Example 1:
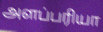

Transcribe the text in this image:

அளப்பரியா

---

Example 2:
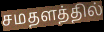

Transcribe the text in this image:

சமதளத்தில்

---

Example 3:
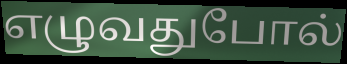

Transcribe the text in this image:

எழுவதுபோல்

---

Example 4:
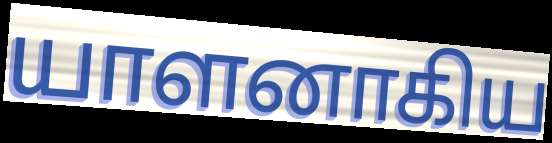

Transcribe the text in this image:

யாளனாகிய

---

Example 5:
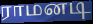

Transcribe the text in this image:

ராமனடி